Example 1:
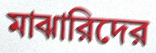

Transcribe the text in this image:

মাঝারিদের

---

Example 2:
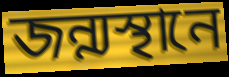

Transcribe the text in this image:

জন্মস্থানে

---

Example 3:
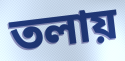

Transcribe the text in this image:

তলায়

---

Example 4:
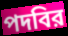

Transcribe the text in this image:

পদবির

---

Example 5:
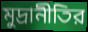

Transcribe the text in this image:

মুদ্রানীতির